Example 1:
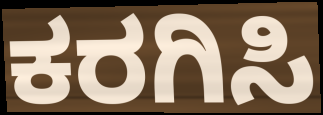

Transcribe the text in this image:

ಕರಗಿಸಿ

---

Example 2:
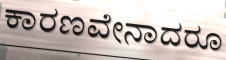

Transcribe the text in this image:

ಕಾರಣವೇನಾದರೂ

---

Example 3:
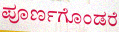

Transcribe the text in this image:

ಪೂರ್ಣಗೊಂಡರೆ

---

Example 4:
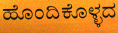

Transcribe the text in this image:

ಹೊಂದಿಕೊಳ್ಳದ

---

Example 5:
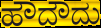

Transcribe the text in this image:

ಹೌದೌದು